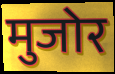
मुजोर